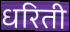
धरिती